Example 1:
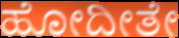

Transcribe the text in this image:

ಹೋದೀತೇ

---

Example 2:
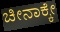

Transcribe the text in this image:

ಚೀನಾಕ್ಕೇ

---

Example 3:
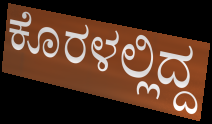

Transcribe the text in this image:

ಕೊರಳಲ್ಲಿದ್ದ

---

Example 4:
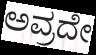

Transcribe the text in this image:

ಅವ್ರದೇ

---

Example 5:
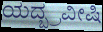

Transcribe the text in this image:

ಯದ್ಬ್ರವೀಷಿ